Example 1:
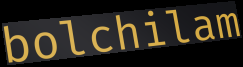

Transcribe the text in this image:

bolchilam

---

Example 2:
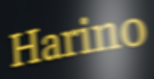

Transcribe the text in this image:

Harino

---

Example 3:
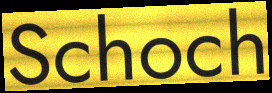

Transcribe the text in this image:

Schoch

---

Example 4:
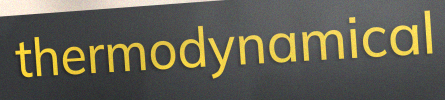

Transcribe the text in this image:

thermodynamical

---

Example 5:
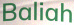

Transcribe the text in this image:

Baliah